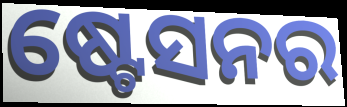
ଷ୍ଟେସନର